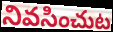
నివసించుట